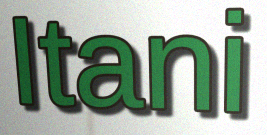
Itani